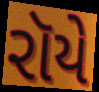
રૉયે